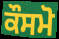
ਕੌਸਮੋ